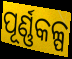
ପୂର୍ଣ୍ଣକଳ୍ପ